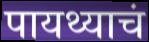
पायथ्याचं